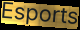
Esports